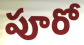
పూరో